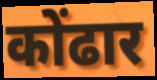
कोंढार